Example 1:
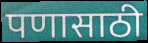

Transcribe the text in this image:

पणासाठी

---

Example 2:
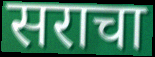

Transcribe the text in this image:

सराचा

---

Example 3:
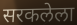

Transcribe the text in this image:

सरकलेला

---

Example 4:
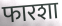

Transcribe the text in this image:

फारशा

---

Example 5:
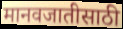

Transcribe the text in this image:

मानवजातीसाठी